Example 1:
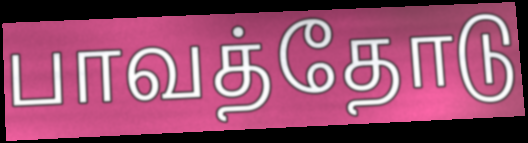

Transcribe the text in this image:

பாவத்தோடு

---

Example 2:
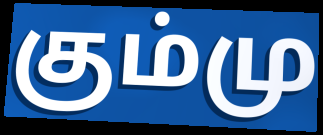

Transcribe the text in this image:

கும்மு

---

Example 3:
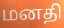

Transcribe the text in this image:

மனதி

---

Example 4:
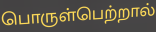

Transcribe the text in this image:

பொருள்பெற்றால்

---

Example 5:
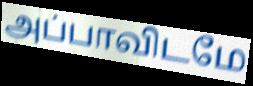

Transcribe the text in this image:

அப்பாவிடமே